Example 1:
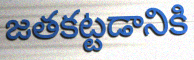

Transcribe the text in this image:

జతకట్టడానికి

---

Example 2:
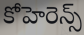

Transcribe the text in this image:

కోహెరెన్స్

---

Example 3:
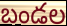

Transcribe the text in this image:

బండల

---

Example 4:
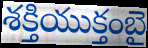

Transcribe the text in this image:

శక్తియుక్తంబై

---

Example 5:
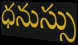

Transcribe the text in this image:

ధనుస్సు